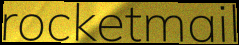
rocketmail